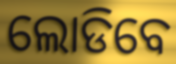
ଲୋଡିବେ